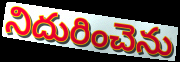
నిదురించెను